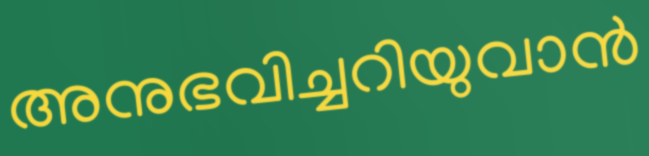
അനുഭവിച്ചറിയുവാൻ